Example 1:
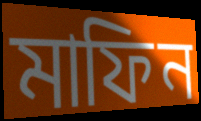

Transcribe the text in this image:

মাফিন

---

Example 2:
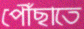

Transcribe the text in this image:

পৌঁছাতে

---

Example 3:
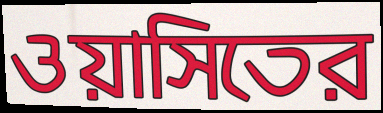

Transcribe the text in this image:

ওয়াসিতের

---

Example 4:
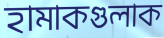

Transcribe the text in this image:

হামাকগুলাক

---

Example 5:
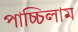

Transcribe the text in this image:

পাচ্চিলাম